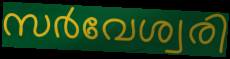
സർവേശ്വരി